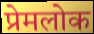
प्रेमलोक